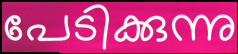
പേടിക്കുന്നു